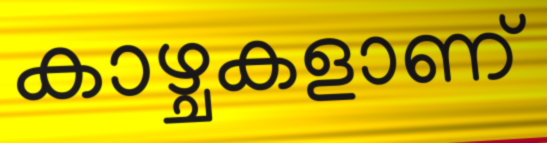
കാഴ്ചകളാണ്